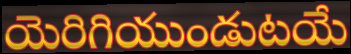
యెరిగియుండుటయే